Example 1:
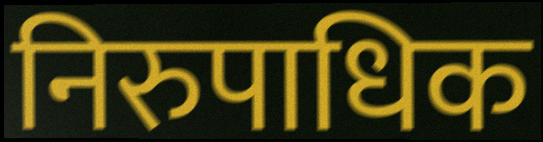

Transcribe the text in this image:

निरुपाधिक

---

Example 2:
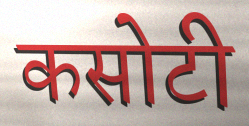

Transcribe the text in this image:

कसोटी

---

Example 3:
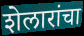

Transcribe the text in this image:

शेलारांचा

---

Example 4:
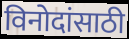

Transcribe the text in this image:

विनोदांसाठी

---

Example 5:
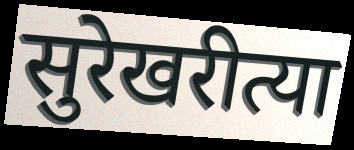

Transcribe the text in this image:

सुरेखरीत्या